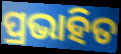
ପ୍ରଭାହିତ